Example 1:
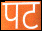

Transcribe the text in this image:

पट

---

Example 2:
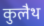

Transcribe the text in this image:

कुलैथ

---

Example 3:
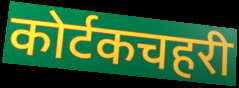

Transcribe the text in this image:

कोर्टकचहरी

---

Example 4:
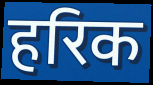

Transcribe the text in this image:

हरिक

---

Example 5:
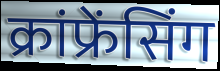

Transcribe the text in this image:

क्रांफ्रेंसिंग